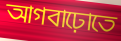
আগবাঢ়োতে